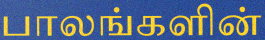
பாலங்களின்